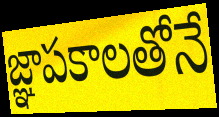
జ్ఞాపకాలతోనే